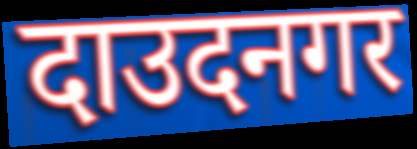
दाउदनगर